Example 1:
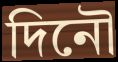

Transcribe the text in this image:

দিনৌ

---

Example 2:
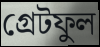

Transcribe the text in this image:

গ্ৰেটফুল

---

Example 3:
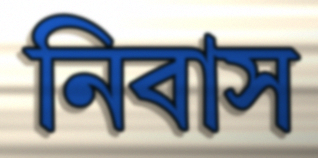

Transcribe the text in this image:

নিবাস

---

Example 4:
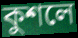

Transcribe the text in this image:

কুশলে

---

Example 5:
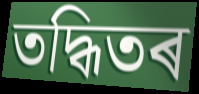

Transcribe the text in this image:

তদ্ধিতৰ